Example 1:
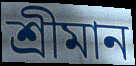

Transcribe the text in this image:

শ্ৰীমান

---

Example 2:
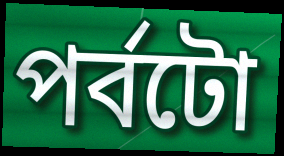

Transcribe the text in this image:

পৰ্বটো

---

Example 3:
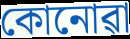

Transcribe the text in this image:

কোনোৱা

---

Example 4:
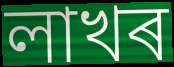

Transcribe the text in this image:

লাখৰ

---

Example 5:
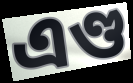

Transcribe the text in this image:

এণ্ড